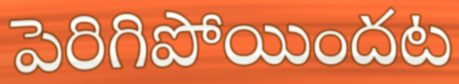
పెరిగిపోయిందట